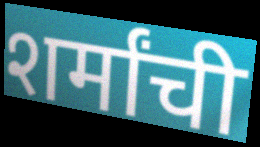
शर्मांची